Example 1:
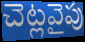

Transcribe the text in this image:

చెట్లవైపు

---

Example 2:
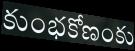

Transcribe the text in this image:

కుంభకోణంకు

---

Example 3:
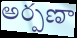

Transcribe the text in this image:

అర్పణా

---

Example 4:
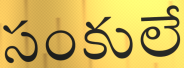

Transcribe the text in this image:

సంకులే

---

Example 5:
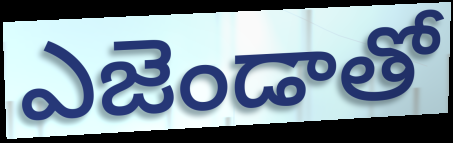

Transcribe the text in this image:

ఎజెండాతో